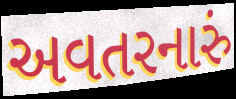
અવતરનારું